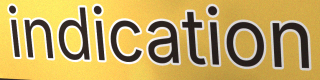
indication